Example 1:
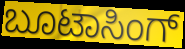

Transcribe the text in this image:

ಬೂಟಾಸಿಂಗ್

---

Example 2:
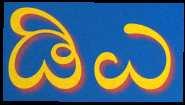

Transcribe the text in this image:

ಡಿಎ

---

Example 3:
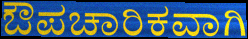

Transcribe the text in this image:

ಔಪಚಾರಿಕವಾಗಿ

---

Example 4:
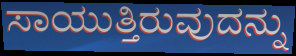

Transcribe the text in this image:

ಸಾಯುತ್ತಿರುವುದನ್ನು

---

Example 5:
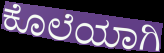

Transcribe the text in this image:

ಕೊಲೆಯಾಗಿ